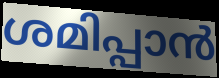
ശമിപ്പാൻ